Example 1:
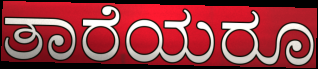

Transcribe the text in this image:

ತಾರೆಯರೂ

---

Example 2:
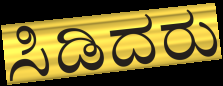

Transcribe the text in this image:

ಸಿಡಿದರು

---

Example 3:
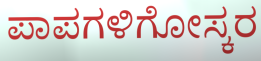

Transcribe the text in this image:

ಪಾಪಗಳಿಗೋಸ್ಕರ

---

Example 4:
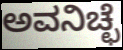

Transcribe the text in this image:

ಅವನಿಚ್ಛೆ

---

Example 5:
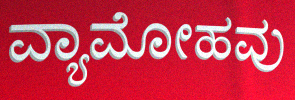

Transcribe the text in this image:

ವ್ಯಾಮೋಹವು